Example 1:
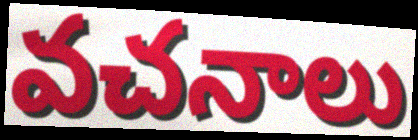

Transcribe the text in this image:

వచనాలు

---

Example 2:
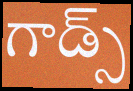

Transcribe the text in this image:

గాడ్స్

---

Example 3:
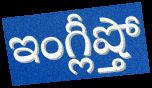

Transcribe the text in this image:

ఇంగ్లీష్తో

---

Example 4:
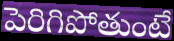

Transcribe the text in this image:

పెరిగిపోతుంటే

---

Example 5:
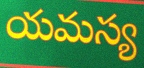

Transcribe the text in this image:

యమస్య